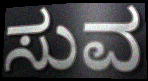
ಸುವ